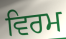
ਵਿਰਮ